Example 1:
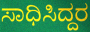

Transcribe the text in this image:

ಸಾಧಿಸಿದ್ದರ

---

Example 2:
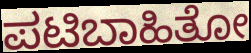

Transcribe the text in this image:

ಪಟಿಬಾಹಿತೋ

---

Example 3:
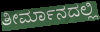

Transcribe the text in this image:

ತೀರ್ಮಾನದಲ್ಲಿ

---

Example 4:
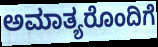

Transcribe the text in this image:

ಅಮಾತ್ಯರೊಂದಿಗೆ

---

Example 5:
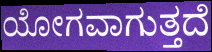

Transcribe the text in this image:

ಯೋಗವಾಗುತ್ತದೆ